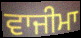
ਵਾਜੀਮਾ